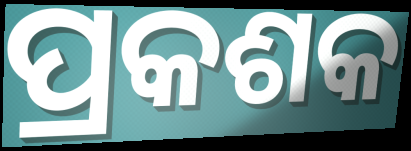
ପ୍ରକଶକ